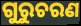
ଗୁରୁଚରଣ